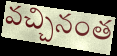
వచ్చినంత